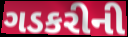
ગડકરીની